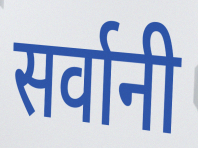
सर्वानी